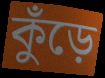
কুঁড়ে